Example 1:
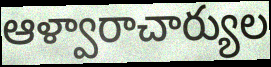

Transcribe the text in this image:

ఆళ్వారాచార్యుల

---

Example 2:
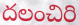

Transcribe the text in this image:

దలంచిరి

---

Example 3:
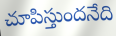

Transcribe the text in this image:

చూపిస్తుందనేది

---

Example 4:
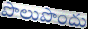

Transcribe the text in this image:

పొలుపొందు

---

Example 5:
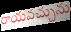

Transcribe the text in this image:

రాయవచ్చును